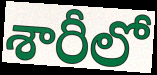
శారీలో